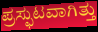
ಪ್ರಸ್ಫುಟವಾಗಿತ್ತು